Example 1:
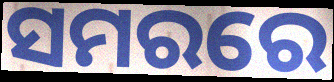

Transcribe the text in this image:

ସମରରେ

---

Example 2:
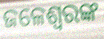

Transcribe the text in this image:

ଜଳେଶ୍ଵରଙ୍କ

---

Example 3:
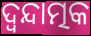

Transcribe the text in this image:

ଦ୍ଵନ୍ଦାତ୍ମକ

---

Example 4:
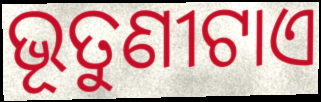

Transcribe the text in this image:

ଭୂତୁଣୀଟାଏ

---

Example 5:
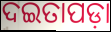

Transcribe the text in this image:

ଦଇତାପଡ଼ା